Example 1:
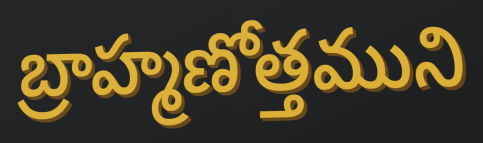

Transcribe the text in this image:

బ్రాహ్మణోత్తముని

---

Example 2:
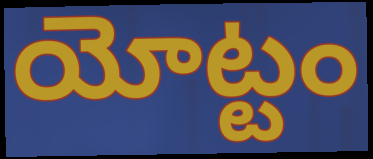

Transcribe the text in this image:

యోట్టం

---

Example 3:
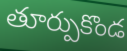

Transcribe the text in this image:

తూర్పుకొండ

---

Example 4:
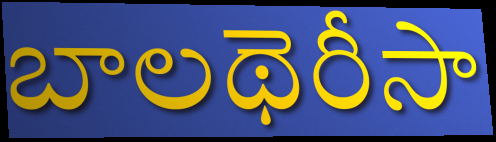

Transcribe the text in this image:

బాలథెరీసా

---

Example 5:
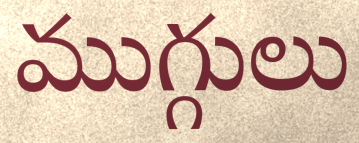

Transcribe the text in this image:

ముగ్గులు